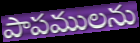
పాపములను